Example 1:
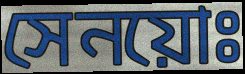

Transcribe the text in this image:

সেনয়োঃ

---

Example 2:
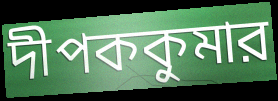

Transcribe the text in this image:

দীপককুমার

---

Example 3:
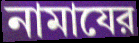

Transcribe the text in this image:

নামাযের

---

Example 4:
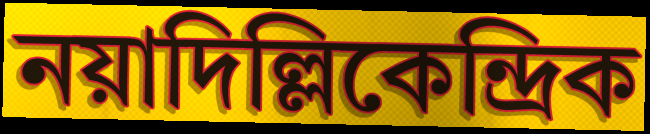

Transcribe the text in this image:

নয়াদিল্লিকেন্দ্রিক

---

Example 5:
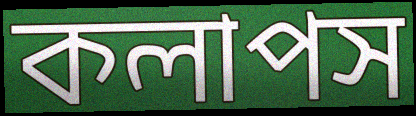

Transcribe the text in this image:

কলাপস